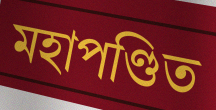
মহাপণ্ডিত